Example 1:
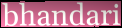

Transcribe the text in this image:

bhandari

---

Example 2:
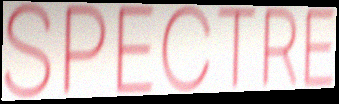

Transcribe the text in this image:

SPECTRE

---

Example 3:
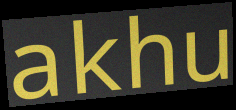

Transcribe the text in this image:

akhu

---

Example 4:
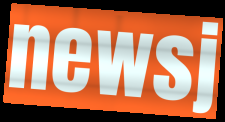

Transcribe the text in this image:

newsj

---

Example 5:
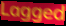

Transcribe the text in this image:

Lagged